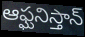
ఆఫ్ఘనిస్తాన్